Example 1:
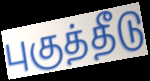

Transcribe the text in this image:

புகுத்தீடு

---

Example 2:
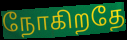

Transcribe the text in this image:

நோகிறதே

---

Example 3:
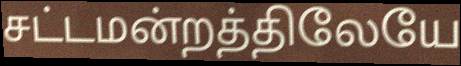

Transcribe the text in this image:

சட்டமன்றத்திலேயே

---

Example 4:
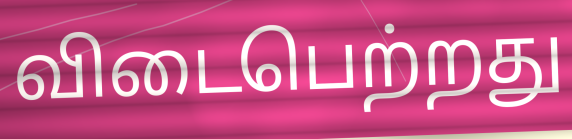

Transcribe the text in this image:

விடைபெற்றது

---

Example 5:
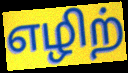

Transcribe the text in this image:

எழிற்